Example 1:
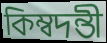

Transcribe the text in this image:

কিম্বদন্তী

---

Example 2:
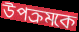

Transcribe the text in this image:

উপক্রমকে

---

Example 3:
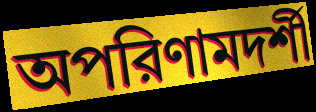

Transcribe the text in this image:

অপরিণামদর্শী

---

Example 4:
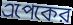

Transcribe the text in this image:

এপেকের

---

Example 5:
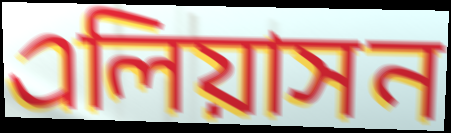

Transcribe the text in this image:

এলিয়াসন